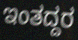
ಇಂತದ್ದರ